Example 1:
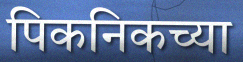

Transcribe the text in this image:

पिकनिकच्या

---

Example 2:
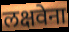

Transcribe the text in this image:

लक्षवेना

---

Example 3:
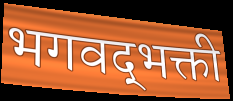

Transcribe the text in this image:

भगवद्‌भक्ती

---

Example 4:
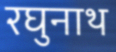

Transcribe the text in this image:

रघुनाथ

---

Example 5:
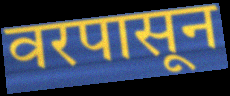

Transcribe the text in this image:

वरपासून